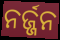
ନର୍ଜ୍ଜନ